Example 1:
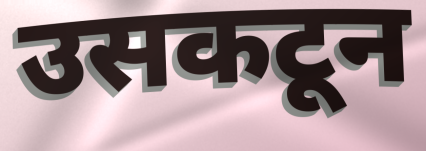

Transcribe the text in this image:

उसकटून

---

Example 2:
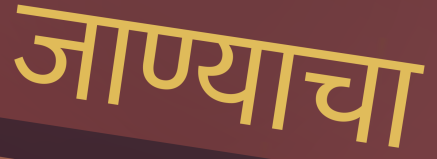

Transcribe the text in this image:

जाण्याचा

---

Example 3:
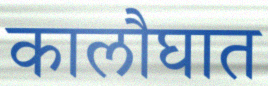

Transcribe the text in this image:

कालौघात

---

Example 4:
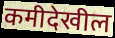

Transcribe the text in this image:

कमीदेखील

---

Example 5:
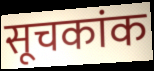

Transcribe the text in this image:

सूचकांक